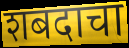
शबदाचा